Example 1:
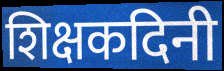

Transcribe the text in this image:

शिक्षकदिनी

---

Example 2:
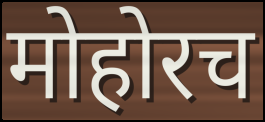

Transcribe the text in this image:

मोहोरच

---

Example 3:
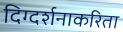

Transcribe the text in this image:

दिग्दर्शनाकरिता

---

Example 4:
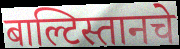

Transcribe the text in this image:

बाल्टिस्तानचे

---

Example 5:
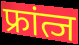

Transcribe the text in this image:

फ्रांत्ज